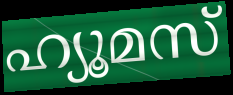
ഹ്യൂമസ്